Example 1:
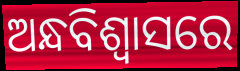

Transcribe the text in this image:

ଅନ୍ଧବିଶ୍ବାସରେ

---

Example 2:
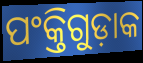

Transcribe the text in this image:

ପଂକ୍ତିଗୁଡ଼ାକ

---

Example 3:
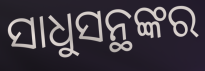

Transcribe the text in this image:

ସାଧୁସନ୍ଥଙ୍କର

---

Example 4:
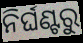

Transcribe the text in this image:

ନିର୍ଘଣ୍ଟରୁ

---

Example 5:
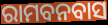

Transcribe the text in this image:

ରାମବନବାସ